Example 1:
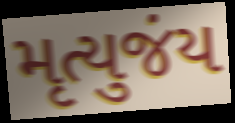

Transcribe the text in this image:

મૃત્યુજંય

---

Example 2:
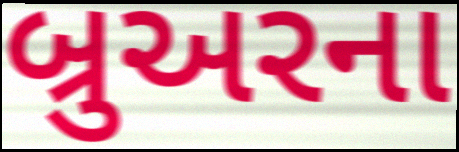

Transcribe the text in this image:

બ્રુઅરના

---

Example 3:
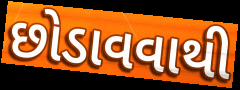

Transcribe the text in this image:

છોડાવવાથી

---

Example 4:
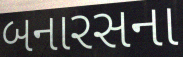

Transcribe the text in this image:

બનારસના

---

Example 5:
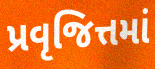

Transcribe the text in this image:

પ્રવૃજિત્તમાં